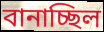
বানাচ্ছিল